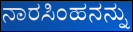
ನಾರಸಿಂಹನನ್ನು